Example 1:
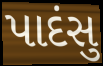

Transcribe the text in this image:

પાદંસુ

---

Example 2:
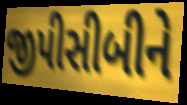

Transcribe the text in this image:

જીપીસીબીને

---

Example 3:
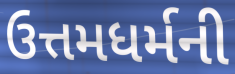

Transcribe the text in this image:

ઉત્તમધર્મની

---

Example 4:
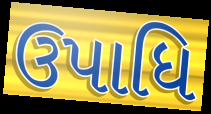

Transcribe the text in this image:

ઉપાધિ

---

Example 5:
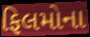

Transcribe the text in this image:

ફિલમોના